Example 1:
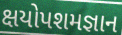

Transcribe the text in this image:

ક્ષયોપશમજ્ઞાન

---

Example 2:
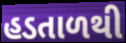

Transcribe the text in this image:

હડતાળથી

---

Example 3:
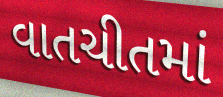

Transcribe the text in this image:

વાતચીતમાં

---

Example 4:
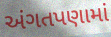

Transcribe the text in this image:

અંગતપણામાં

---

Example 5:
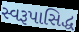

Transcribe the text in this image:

સ્વરૂપાસિદ્ધ